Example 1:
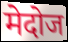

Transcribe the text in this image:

मेदोज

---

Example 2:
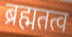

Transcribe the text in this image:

ब्रह्मतत्व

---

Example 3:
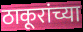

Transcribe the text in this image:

ठाकूरांच्या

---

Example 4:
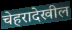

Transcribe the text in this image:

चेहरादेखील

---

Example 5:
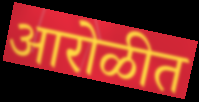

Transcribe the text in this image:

आरोळीत